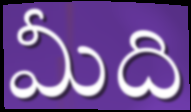
మీది